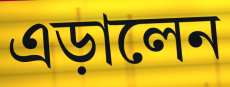
এড়ালেন